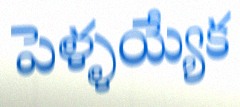
పెళ్ళయ్యేక